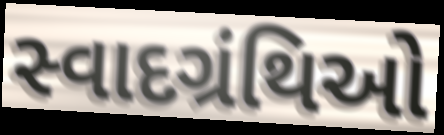
સ્વાદગ્રંથિઓ